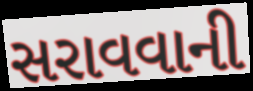
સરાવવાની